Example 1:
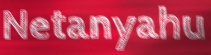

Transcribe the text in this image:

Netanyahu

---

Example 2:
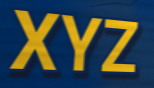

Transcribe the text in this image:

XYZ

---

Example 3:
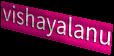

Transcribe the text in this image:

vishayalanu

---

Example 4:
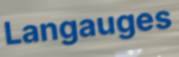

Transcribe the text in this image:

Langauges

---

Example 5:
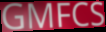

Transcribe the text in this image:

GMFCS